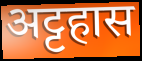
अट्टहास